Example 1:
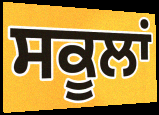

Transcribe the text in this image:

ਸਕੂਲਾਂ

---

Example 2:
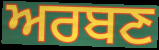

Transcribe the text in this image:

ਅਰਬਣ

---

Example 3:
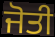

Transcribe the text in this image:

ਜੋਤੀ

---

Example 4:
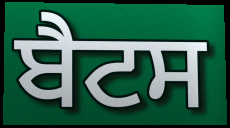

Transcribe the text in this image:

ਬੈਟਸ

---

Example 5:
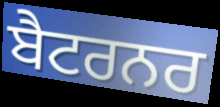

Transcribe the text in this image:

ਬੈਟਰਨਰ